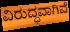
ವಿರುದ್ಧವಾಗಿವೆ